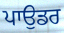
ਪਾਉਡਰ